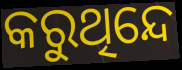
କରୁଥିନ୍ଦେ